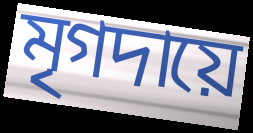
মৃগদায়ে